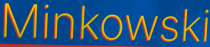
Minkowski